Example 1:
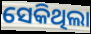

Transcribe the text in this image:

ସେକିଥିଲା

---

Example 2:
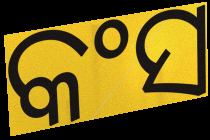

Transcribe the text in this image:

କଂସ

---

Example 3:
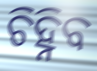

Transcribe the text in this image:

ଚିହ୍ନିବ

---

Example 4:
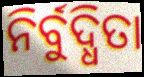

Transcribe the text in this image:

ନିର୍ବୁଦ୍ଧିତା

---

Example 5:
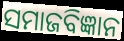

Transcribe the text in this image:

ସମାଜବିଜ୍ଞାନ